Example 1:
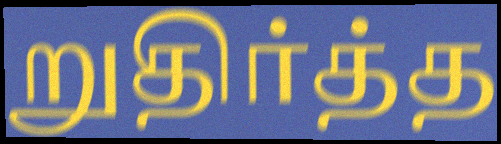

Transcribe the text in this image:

றுதிர்த்த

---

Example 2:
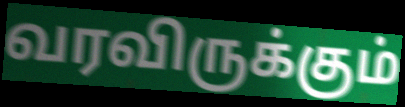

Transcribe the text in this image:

வரவிருக்கும்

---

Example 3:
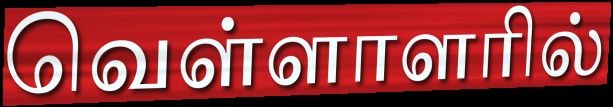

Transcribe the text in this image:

வெள்ளாளரில்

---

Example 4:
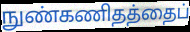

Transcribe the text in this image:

நுண்கணிதத்தைப்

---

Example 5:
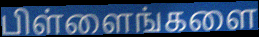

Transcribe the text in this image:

பிள்ளைங்களை